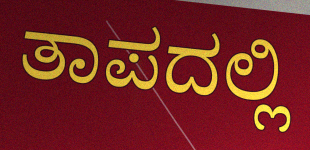
ತಾಪದಲ್ಲಿ